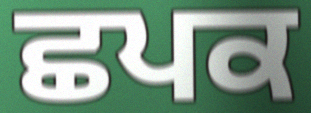
ਛਪਕ